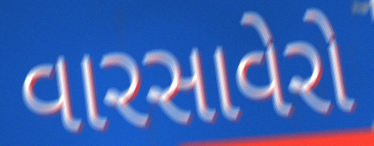
વારસાવેરો